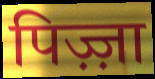
पिज़्ज़ा